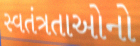
સ્વતંત્રતાઓનો